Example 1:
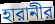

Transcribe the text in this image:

হারানীর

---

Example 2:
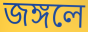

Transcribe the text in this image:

জঙ্গলে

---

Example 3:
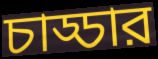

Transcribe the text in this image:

চাড্ডার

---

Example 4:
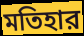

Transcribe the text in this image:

মতিহার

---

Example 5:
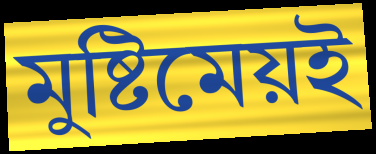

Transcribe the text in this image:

মুষ্টিমেয়ই